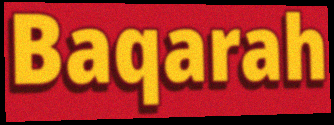
Baqarah